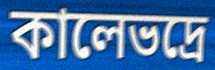
কালেভদ্রে